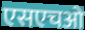
एसएचओ